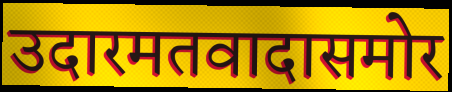
उदारमतवादासमोर